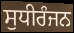
ਸੁਧੀਰੰਜਨ